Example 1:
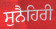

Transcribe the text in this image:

ਸੁਨੈਹਿਰੀ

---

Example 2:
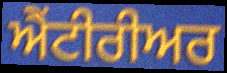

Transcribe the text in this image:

ਐਂਟੀਰੀਅਰ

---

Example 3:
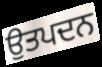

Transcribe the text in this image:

ਉਤਪਦਨ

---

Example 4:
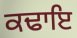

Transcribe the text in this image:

ਕਢਾਇ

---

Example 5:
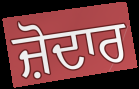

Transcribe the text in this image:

ਜ਼ੋਦਾਰ